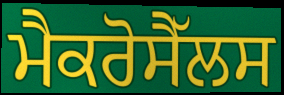
ਮੈਕਰੋਸੈੱਲਸ